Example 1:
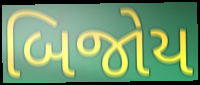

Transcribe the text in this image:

બિજોય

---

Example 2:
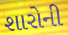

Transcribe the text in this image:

શારોની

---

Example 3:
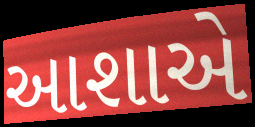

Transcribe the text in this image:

આશાએ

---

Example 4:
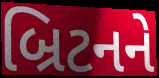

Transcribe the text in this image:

બ્રિટનને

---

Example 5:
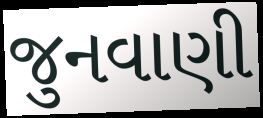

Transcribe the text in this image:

જુનવાણી